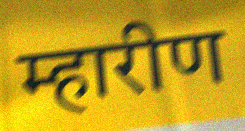
म्हारीण